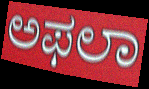
ಅಫಲಾ